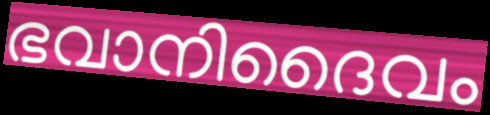
ഭവാനിദൈവം